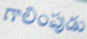
గాలింపుడు